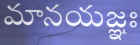
మానయజ్ఞః